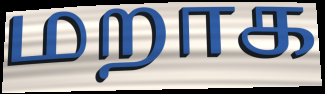
மறாக